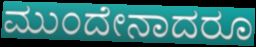
ಮುಂದೇನಾದರೂ